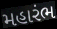
મહારંભ